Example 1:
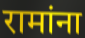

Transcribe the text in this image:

रामांना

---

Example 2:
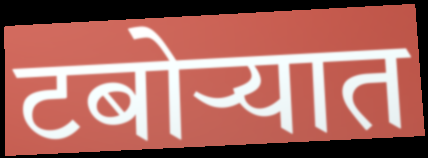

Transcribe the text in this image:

टबोऱ्यात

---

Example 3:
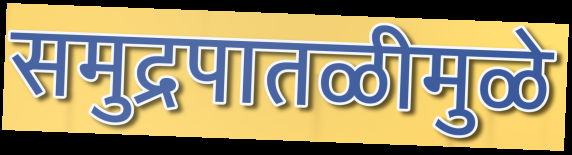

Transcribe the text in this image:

समुद्रपातळीमुळे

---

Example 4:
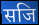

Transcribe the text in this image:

सजि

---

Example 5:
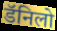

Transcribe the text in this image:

डॅनिलो